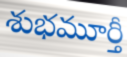
శుభమూర్తీ